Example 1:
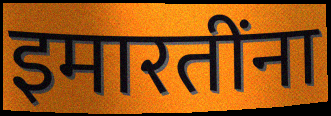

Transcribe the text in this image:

इमारतींना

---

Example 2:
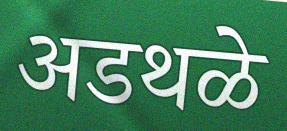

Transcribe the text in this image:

अडथळे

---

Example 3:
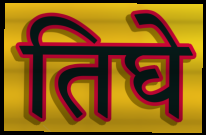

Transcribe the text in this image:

तिघे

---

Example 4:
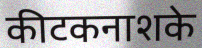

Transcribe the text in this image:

कीटकनाशके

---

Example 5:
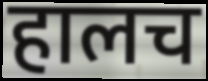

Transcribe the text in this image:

हालच